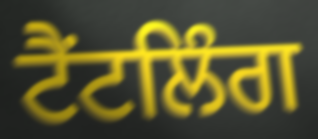
ਟੈਂਟਲਿੰਗ